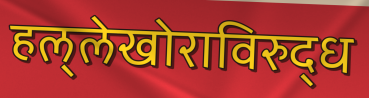
हल्लेखोराविरुद्ध